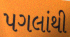
પગલાંથી